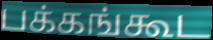
பக்கங்கூட